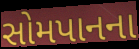
સોમપાનના